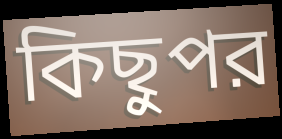
কিছুপর